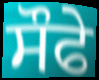
ਸੌਫੇ